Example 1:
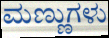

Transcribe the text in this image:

ಮಣ್ಣುಗಳು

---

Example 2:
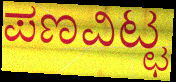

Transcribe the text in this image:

ಪಣವಿಟ್ಟ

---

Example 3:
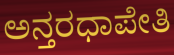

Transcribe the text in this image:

ಅನ್ತರಧಾಪೇತಿ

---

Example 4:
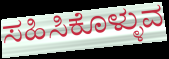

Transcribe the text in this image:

ಸಹಿಸಿಕೊಳ್ಳುವ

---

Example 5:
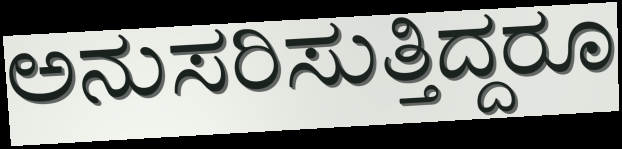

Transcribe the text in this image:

ಅನುಸರಿಸುತ್ತಿದ್ದರೂ